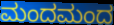
ಮಂದಮಂದ